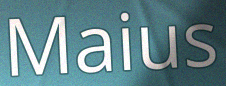
Maius